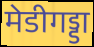
मेडीगड्डा